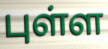
புள்ள